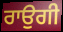
ਰਾਉਗੀ